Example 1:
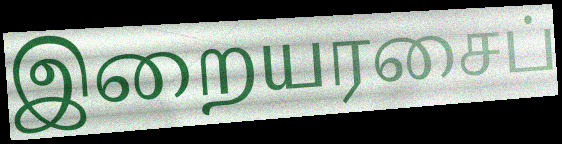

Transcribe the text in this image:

இறையரசைப்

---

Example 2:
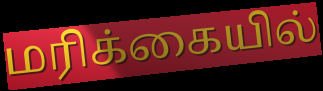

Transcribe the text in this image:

மரிக்கையில்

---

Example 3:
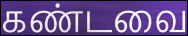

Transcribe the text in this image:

கண்டவை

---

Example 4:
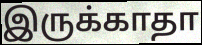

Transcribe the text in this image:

இருக்காதா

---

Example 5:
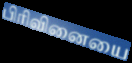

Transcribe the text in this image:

பிரிவினையை